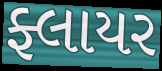
ફ્લાયર